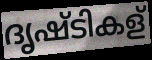
ദൃഷ്ടികള്